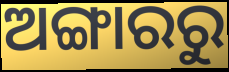
ଅଙ୍ଗାରରୁ